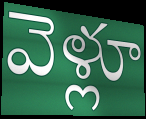
వెళ్లూ